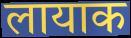
लायाक